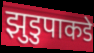
झुडुपाकडे